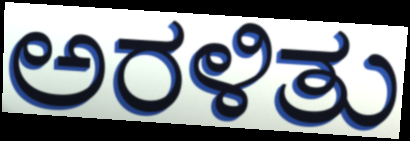
ಅರಳಿತು